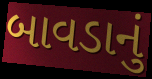
બાવડાનું